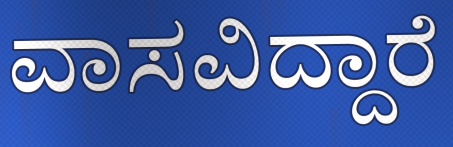
ವಾಸವಿದ್ದಾರೆ